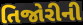
તિજોરીની